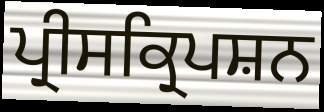
ਪ੍ਰੀਸਕ੍ਰਿਪਸ਼ਨ